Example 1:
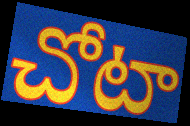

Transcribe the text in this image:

చోటా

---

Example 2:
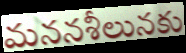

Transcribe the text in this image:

మననశీలునకు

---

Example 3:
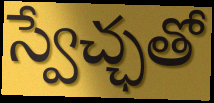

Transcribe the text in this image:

స్వేచ్ఛతో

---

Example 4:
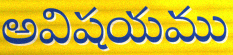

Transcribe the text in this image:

అవిషయము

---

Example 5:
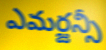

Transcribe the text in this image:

ఎమర్జన్సీ